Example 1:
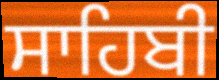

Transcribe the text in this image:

ਸਾਹਿਬੀ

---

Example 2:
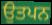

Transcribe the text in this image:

ਉਤਪਨ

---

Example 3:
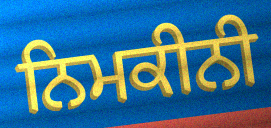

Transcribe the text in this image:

ਨਿਮਕੀਨੀ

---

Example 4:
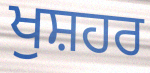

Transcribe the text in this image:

ਖੁਸ਼ਹਰ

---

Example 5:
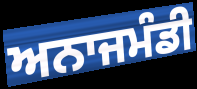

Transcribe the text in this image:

ਅਨਾਜਮੰਡੀ